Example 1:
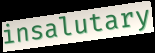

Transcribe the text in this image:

insalutary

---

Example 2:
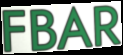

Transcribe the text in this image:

FBAR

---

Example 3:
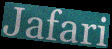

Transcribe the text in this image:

Jafari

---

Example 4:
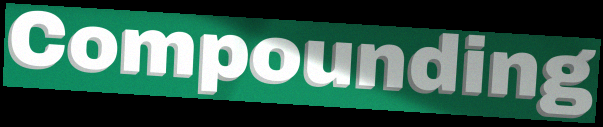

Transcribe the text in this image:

Compounding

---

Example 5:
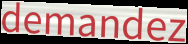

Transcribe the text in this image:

demandez